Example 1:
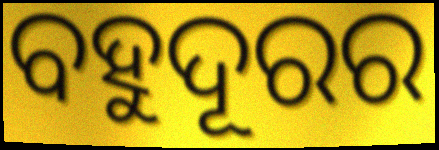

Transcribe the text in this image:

ବହୁଦୂରର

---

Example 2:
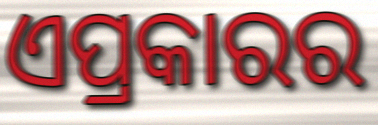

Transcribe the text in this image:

ଏପ୍ରକାରର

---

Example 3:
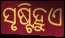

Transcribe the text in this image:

ସୃଷ୍ଟିହୁଏ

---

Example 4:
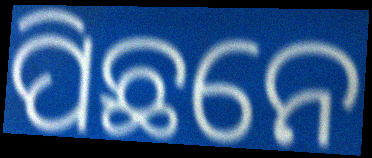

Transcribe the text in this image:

ପିଛନେ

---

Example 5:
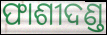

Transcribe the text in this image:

ଫାଶୀଦଣ୍ଡ